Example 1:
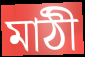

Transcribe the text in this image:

মাঠী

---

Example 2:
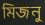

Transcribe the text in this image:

মিজনু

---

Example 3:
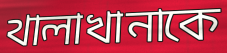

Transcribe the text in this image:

থালাখানাকে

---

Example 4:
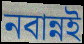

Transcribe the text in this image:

নবান্নই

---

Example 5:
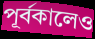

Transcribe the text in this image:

পূর্বকালেও